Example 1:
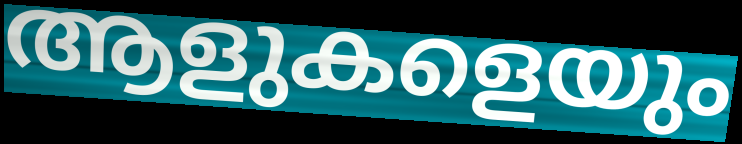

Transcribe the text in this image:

ആളുകളെയും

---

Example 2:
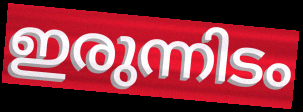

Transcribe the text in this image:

ഇരുന്നിടം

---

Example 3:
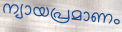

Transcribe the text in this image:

ന്യായപ്രമാണം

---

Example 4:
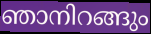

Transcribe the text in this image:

ഞാനിറങ്ങും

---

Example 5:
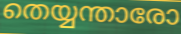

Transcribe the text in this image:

തെയ്യന്താരോ